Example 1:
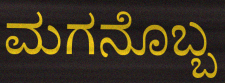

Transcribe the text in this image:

ಮಗನೊಬ್ಬ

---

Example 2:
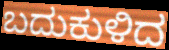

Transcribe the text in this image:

ಬದುಕುಳಿದ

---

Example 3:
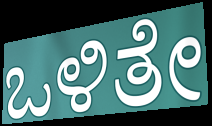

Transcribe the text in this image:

ಒಳಿತೇ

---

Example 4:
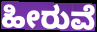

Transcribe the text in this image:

ಹೀರುವೆ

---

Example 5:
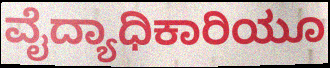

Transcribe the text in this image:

ವೈದ್ಯಾಧಿಕಾರಿಯೂ